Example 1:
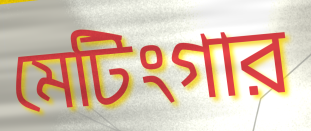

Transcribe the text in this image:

মেটিংগার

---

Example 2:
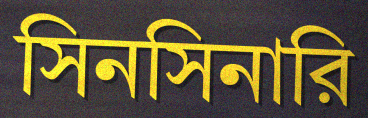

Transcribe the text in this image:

সিনসিনারি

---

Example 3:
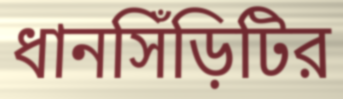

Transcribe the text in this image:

ধানসিঁড়িটির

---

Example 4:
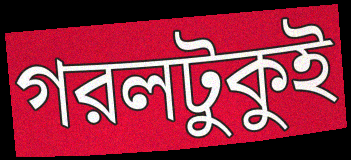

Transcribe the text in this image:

গরলটুকুই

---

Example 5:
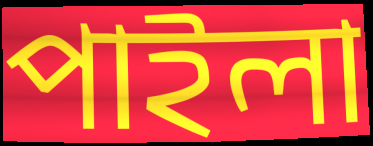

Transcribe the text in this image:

পাইলা